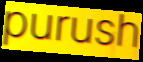
purush